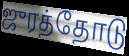
ஜுரத்தோடு